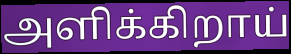
அளிக்கிறாய்